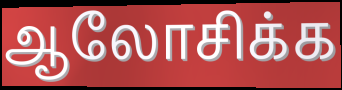
ஆலோசிக்க